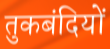
तुकबंदियों